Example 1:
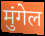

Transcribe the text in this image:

मुंगेल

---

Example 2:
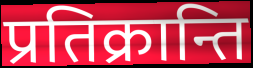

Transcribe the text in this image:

प्रतिक्रान्ति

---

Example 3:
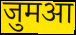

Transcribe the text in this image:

जुमआ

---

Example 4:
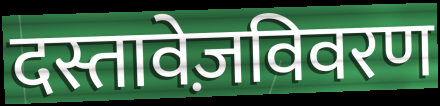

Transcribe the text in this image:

दस्तावेज़विवरण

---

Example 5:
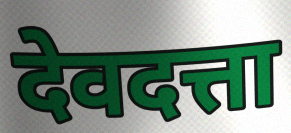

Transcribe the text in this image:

देवदत्ता